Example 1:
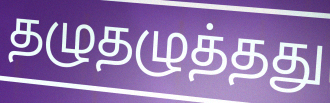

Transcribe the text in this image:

தழுதழுத்தது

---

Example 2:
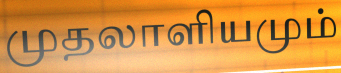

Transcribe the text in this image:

முதலாளியமும்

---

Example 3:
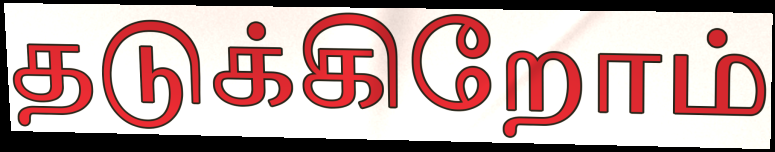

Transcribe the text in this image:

தடுக்கிறோம்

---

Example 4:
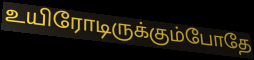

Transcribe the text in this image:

உயிரோடிருக்கும்போதே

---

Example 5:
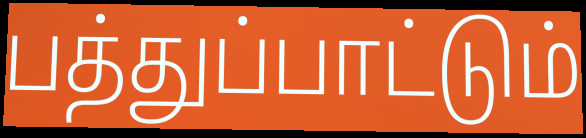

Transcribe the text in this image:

பத்துப்பாட்டும்